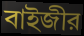
বাইজীর